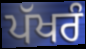
ਪੱਖਰੰ